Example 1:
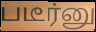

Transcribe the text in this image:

படீர்னு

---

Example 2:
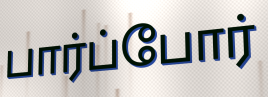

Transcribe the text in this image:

பார்ப்போர்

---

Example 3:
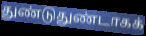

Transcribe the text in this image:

துண்டுதுண்டாகக்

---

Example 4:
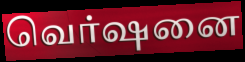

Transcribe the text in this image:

வெர்ஷனை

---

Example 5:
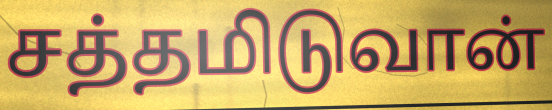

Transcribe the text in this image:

சத்தமிடுவான்